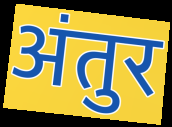
अंतुर